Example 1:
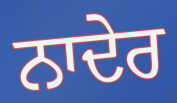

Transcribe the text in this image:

ਨਾਦੇਰ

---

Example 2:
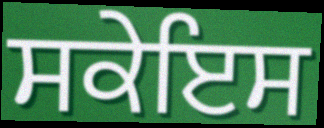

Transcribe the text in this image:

ਸਕੇਇਸ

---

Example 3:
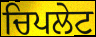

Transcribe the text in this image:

ਚਿਪਲੇਟ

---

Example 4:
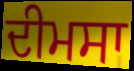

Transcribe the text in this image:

ਦੀਮਸਾ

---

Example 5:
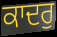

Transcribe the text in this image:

ਕਾਦਰੁ